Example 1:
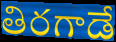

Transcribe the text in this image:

తిరగాడే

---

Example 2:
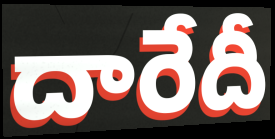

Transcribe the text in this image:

దారేదీ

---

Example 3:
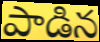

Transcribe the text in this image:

పాడిన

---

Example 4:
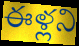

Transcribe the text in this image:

ఈళ్లని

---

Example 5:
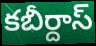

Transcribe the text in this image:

కబీర్దాస్